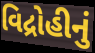
વિદ્રોહીનું